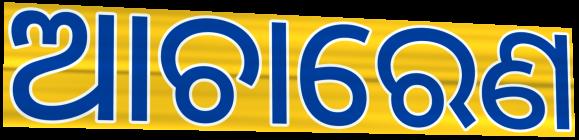
ଆଚାରେଣ